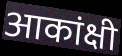
आकांक्षी